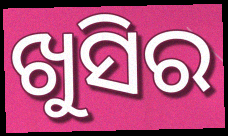
ଖୁସିର